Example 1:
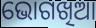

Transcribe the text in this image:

ଭୋଗଖିଆ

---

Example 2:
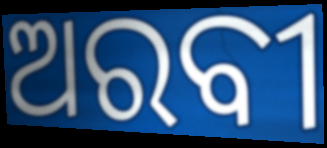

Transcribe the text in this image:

ଅରବୀ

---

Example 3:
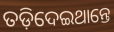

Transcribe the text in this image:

ତଡ଼ିଦେଇଥାନ୍ତେ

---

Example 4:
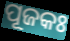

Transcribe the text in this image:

ପୂଜକଃ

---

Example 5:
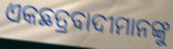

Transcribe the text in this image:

ଏକଛତ୍ରବାଦୀମାନଙ୍କୁ